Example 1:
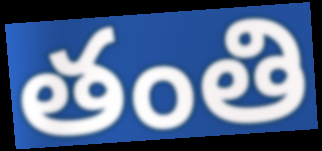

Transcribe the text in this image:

తంతి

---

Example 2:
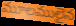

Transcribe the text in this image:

మూలములైన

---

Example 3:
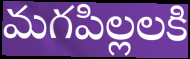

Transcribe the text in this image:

మగపిల్లలకి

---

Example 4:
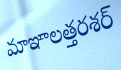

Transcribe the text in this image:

మాఞాలత్తరశర్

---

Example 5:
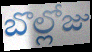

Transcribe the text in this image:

బొల్లోజు